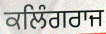
ਕਲਿੰਗਰਾਜ